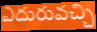
ఎదురువచ్చి